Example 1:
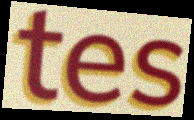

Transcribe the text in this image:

tes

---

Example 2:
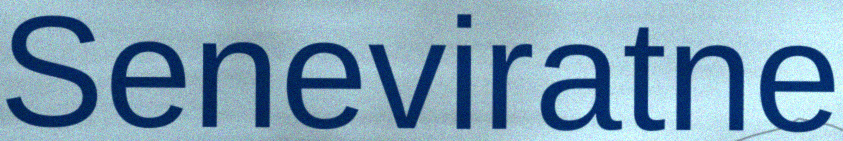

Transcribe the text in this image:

Seneviratne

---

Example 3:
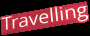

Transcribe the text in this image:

Travelling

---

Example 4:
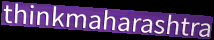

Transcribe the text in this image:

thinkmaharashtra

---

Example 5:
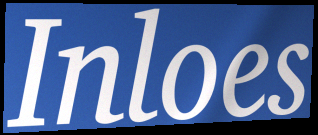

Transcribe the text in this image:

Inloes